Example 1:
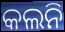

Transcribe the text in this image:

କଲନି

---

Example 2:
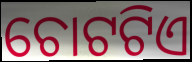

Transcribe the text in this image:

ଚୋଟଟିଏ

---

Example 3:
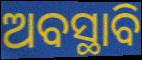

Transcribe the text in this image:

ଅବସ୍ଥାବି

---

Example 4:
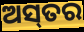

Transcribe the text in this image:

ଅସ୍‌ତର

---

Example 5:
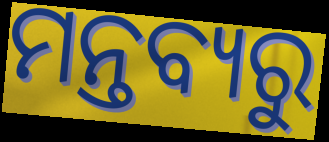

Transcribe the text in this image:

ମନ୍ତବ୍ୟରୁ